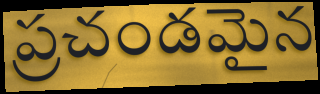
ప్రచండమైన